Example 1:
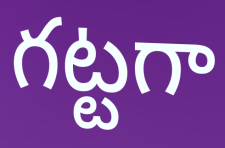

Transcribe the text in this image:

గట్టగా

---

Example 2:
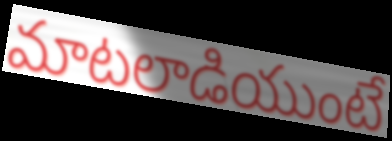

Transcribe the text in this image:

మాటలాడియుంటే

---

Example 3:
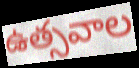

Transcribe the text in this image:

ఉత్సవాల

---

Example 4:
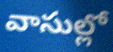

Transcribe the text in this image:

వాసుల్లో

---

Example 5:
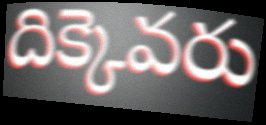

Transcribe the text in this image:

దిక్కెవరు